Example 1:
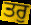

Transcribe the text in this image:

ਤਰੁ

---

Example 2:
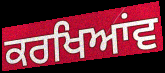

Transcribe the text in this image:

ਕਰਖਿਆਂਵ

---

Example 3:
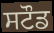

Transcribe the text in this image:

ਸਟੌਡ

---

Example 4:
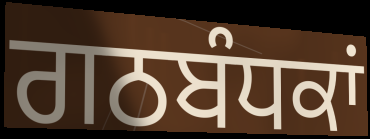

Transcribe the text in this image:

ਗਠਬੰਧਕਾਂ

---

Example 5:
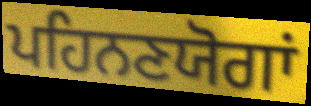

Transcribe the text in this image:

ਪਹਿਨਣਯੋਗਾਂ